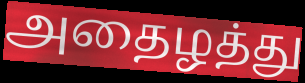
அதைழத்து